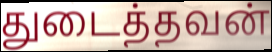
துடைத்தவன்